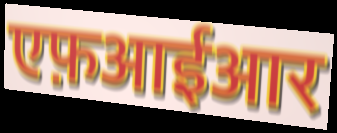
एफ़आईआर